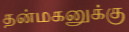
தன்மகனுக்கு